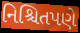
નિશ્ચિતપણે